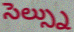
సెల్స్ను